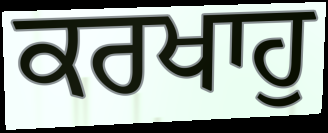
ਕਰਖਾਹੁ